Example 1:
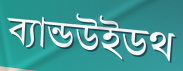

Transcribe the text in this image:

ব্যান্ডউইডথ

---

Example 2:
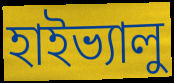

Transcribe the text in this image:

হাইভ্যালু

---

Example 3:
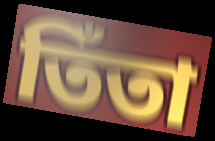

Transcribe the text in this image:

তিঁতা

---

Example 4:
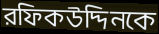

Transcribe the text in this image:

রফিকউদ্দিনকে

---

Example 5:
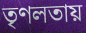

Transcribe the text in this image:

তৃণলতায়